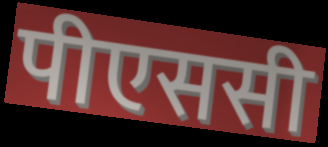
पीएससी